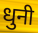
धुनी